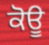
ਕੋਊ